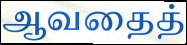
ஆவதைத்